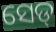
ସେଡ୍